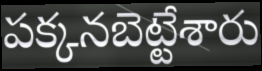
పక్కనబెట్టేశారు